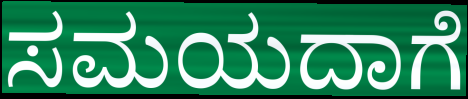
ಸಮಯದಾಗೆ